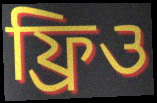
ফ্রিও